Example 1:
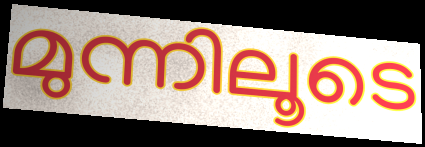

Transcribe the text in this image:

മുന്നിലൂടെ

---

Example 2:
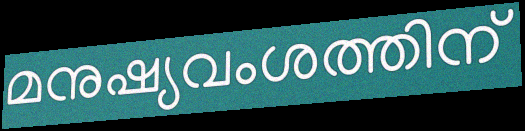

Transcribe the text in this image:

മനുഷ്യവംശത്തിന്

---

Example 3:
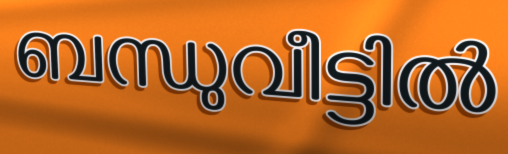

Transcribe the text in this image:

ബന്ധുവീട്ടിൽ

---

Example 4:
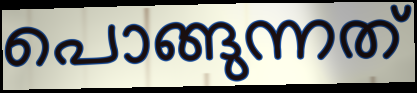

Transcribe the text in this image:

പൊങ്ങുന്നത്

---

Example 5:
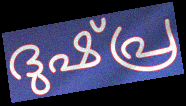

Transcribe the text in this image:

ദുഷ്‌പ്ര